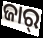
ଜାର୍